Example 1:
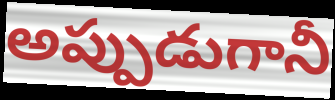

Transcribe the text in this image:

అప్పుడుగానీ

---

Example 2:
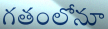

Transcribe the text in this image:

గతంలోనూ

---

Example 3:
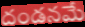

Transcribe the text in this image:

దండనమే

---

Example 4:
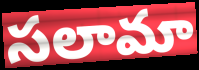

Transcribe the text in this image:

సలామా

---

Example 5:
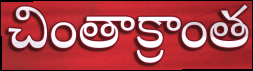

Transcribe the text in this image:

చింతాక్రాంత